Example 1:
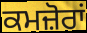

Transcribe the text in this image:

ਕਮਜ਼ੋਰਾਂ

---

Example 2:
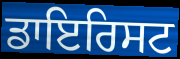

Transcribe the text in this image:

ਡਾਇਰਿਸਟ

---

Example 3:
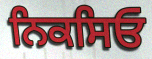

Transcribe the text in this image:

ਨਿਕਸਿਓ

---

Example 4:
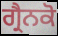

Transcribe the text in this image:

ਗ੍ਰੈਨਕੋ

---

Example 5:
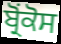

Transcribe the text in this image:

ਬ੍ਰੋਂਕੋਸ